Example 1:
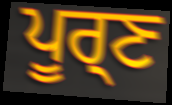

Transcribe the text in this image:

ਪੂਰ੍ਣ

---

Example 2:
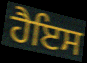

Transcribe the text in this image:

ਹੈਇਸ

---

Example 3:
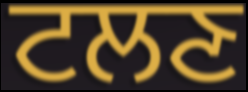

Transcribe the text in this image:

ਟਲਣ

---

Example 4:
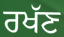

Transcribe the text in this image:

ਰਖੱਣ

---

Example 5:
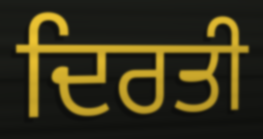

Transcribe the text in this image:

ਦਿਰਤੀ